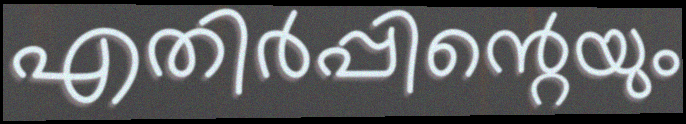
എതിർപ്പിന്റെയും